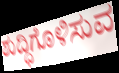
ಶುದ್ಧಿಗೊಳಿಸುವ